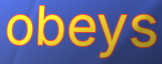
obeys